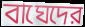
বাঘেদের